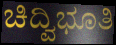
ಚಿದ್ವಿಭೂತಿ